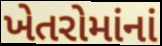
ખેતરોમાંનાં